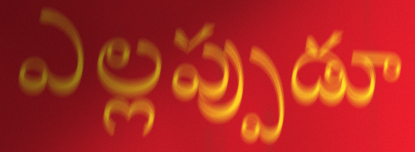
ఎల్లప్పుడూ